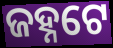
ଜହ୍ନଟେ